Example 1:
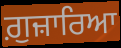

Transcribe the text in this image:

ਗ਼ੁਜ਼ਾਰਿਆ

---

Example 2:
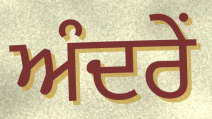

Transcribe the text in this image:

ਅੰਦਰੇਂ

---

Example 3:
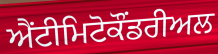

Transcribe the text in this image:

ਐਂਟੀਮਿਟੋਕੌਂਡਰੀਅਲ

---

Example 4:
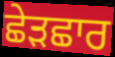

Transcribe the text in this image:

ਛੇੜਛਾਰ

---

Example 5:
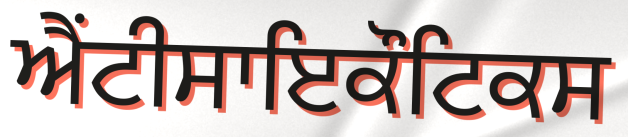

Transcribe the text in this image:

ਐਂਟੀਸਾਇਕੌਟਿਕਸ